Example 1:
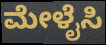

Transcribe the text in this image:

ಮೇಳೈಸಿ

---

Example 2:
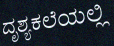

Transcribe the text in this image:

ದೃಶ್ಯಕಲೆಯಲ್ಲಿ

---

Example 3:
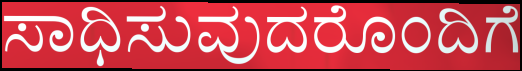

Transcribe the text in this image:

ಸಾಧಿಸುವುದರೊಂದಿಗೆ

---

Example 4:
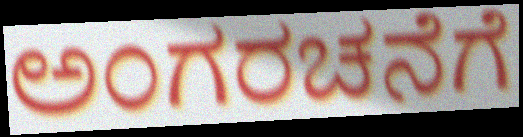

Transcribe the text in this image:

ಅಂಗರಚನೆಗೆ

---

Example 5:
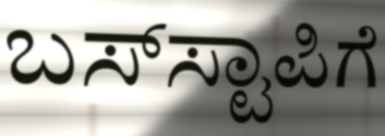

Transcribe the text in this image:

ಬಸ್‌ಸ್ಟಾಪಿಗೆ